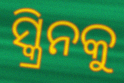
ସ୍କ୍ରିନକୁ